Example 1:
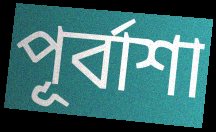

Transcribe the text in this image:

পূর্বাশা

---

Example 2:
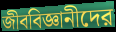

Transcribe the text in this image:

জীববিজ্ঞানীদের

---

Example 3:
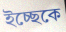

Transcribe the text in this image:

ইচ্ছেকে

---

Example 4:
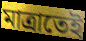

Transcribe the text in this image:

মাত্রাতেই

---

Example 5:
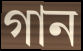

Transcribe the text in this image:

গান